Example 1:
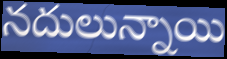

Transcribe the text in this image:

నదులున్నాయి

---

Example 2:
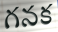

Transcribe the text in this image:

గనక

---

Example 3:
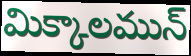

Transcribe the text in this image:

మిక్కాలమున్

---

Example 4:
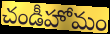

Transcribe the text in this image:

చండీహోమం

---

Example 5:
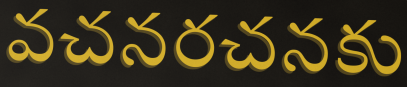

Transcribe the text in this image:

వచనరచనకు